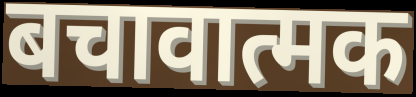
बचावात्मक